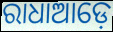
ରାଧାଆଡ଼େ